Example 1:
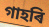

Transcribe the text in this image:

গাহৰি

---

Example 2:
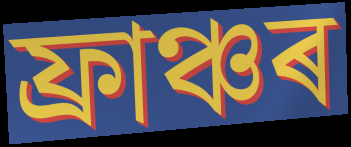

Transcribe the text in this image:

ফ্ৰাঞ্চৰ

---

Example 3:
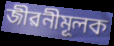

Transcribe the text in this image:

জীৱনীমূলক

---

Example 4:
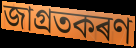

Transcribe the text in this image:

জাগ্ৰতকৰণ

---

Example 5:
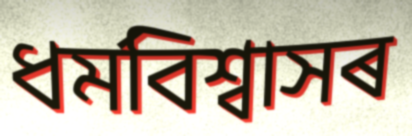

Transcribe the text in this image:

ধৰ্মবিশ্বাসৰ